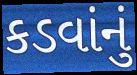
કડવાંનું